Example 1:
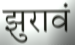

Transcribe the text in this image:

झुरावं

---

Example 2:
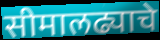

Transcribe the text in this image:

सीमालढ्याचे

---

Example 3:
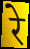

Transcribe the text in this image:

रे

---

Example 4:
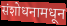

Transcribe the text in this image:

संशोधनामधून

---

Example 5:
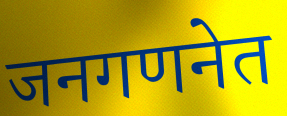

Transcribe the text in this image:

जनगणनेत